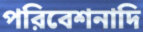
পরিবেশনাদি